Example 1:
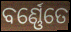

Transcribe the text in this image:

ବର୍ଣ୍ଣେତେ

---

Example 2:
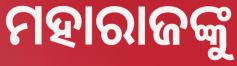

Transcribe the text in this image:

ମହାରାଜଙ୍କୁ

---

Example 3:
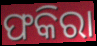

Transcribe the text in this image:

ଫକିରା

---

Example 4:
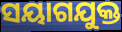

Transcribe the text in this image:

ସୟାଗଯୁକ୍ତ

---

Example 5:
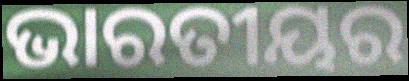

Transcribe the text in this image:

ଭାରତୀୟର